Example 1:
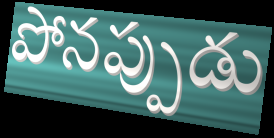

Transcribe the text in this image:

పోనప్పుడు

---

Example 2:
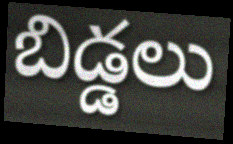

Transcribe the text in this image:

బిడ్డలు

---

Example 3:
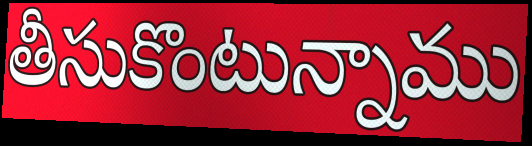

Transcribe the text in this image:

తీసుకొంటున్నాము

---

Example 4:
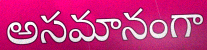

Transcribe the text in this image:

అసమానంగా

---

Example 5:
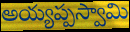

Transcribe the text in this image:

అయ్యప్పస్వామి